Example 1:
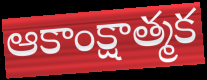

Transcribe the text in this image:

ఆకాంక్షాత్మక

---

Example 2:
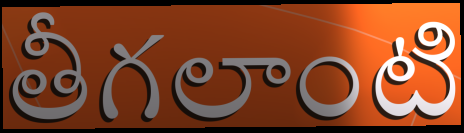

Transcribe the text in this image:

తీగలాంటి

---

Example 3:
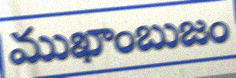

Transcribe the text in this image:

ముఖాంబుజం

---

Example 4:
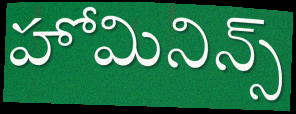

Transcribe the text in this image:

హోమినిన్స్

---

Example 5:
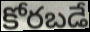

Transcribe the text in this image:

కోరబడే